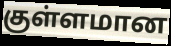
குள்ளமான